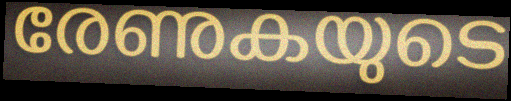
രേണുകയുടെ